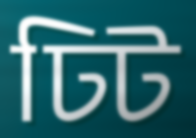
ঢিট